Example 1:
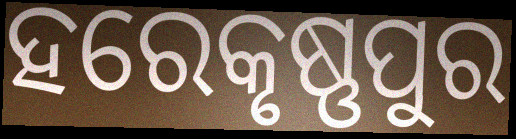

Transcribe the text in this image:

ହରେକୃଷ୍ଣପୁର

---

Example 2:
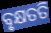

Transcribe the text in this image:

ବୃକ୍ଷତତି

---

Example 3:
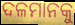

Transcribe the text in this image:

ଦଳମାନକୁ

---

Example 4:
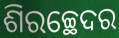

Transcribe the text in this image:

ଶିରଚ୍ଛେଦର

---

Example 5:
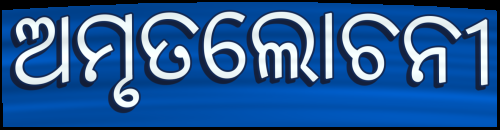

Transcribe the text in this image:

ଅମୃତଲୋଚନୀ